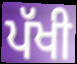
ਪੱਖੀ